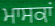
ਮਾਸਕਾਂ